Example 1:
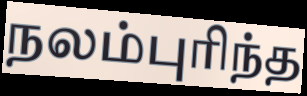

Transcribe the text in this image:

நலம்புரிந்த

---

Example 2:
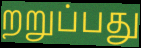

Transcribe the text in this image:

றறுப்பது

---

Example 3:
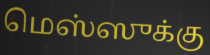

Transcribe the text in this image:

மெஸ்ஸுக்கு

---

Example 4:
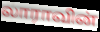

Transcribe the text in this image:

லாராவின்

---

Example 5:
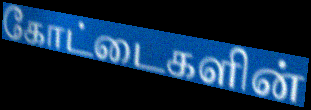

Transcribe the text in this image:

கோட்டைகளின்